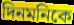
দিনমনিকে